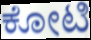
ಕೋಟಿ